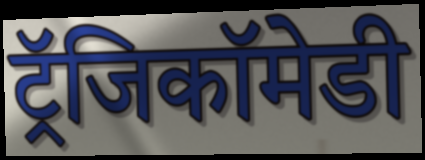
ट्रॅजिकॉमेडी